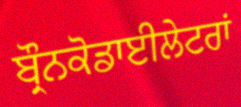
ਬ੍ਰੌਨਕੋਡਾਈਲੇਟਰਾਂ